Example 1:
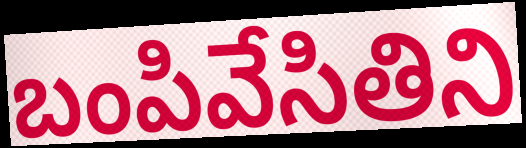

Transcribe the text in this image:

బంపివేసితిని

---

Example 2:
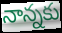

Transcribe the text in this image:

నాన్నకు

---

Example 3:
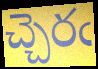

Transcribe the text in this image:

చ్చెరఁ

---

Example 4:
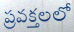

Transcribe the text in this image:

ప్రవక్తలలో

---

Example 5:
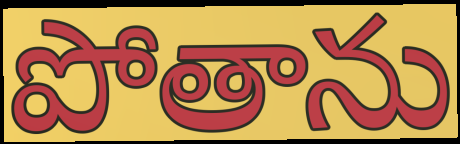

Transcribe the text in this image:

పోతాను